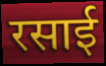
रसाई